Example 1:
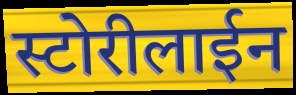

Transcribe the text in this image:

स्टोरीलाईन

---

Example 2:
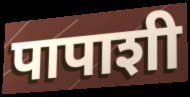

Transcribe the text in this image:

पापाशी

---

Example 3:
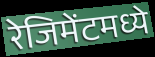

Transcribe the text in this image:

रेजिमेंटमध्ये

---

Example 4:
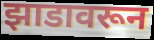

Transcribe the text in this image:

झाडावरून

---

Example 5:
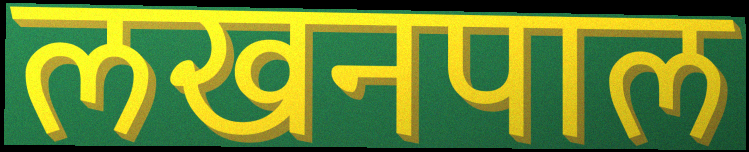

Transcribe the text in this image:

लखनपाल